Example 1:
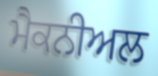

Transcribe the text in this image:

ਮੈਕਨੀਅਲ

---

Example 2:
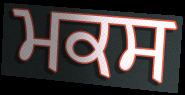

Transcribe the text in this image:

ਮਕਸ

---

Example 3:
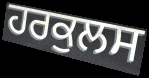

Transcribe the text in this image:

ਹਰਕੁਲਸ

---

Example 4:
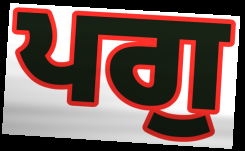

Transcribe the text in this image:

ਪਗੁ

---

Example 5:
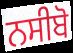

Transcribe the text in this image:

ਨਸੀਬੋ